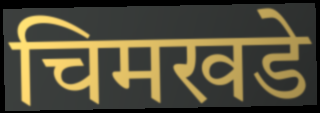
चिमखडे